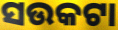
ସଉକଟା